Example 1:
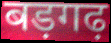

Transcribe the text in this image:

बड़गढ़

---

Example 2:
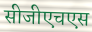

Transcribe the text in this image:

सीजीएचएस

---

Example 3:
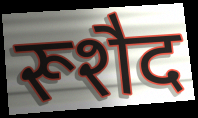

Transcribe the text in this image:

रूशैद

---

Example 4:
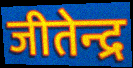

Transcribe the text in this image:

जीतेन्द्र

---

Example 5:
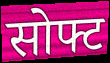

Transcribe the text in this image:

सोफ्ट